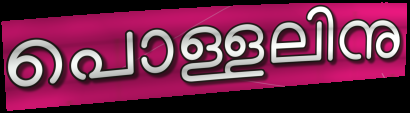
പൊള്ളലിനു